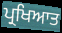
ਪ੍ਰਖਿਆਤ